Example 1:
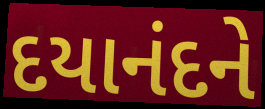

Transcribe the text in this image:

દયાનંદને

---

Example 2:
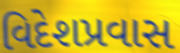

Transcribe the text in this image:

વિદેશપ્રવાસ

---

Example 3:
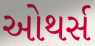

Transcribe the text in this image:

ઓથર્સ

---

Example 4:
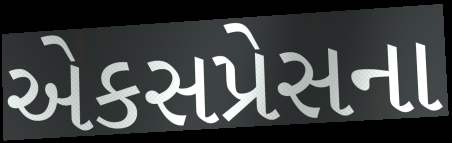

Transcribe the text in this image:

એકસપ્રેસના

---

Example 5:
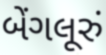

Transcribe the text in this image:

બેંગલૂરું